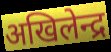
अखिलेन्द्र